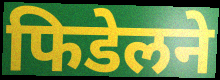
फिडेलने